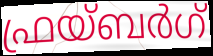
ഫ്രയ്ബർഗ്